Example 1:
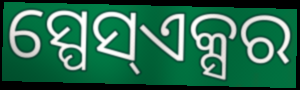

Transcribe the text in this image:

ସ୍ପେସ୍ଏକ୍ସର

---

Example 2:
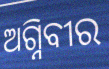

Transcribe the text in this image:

ଅଗ୍ନିବୀର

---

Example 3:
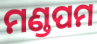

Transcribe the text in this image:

ମଣ୍ଡପମ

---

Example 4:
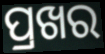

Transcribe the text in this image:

ପ୍ରଖର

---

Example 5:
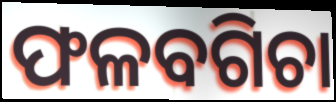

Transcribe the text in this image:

ଫଳବଗିଚା